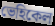
ভেহিকেল